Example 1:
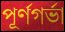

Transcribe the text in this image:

পূর্ণগর্ভা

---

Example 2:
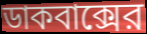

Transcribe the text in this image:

ডাকবাক্সের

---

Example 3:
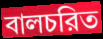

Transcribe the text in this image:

বালচরিত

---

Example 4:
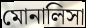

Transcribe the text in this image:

মোনালিসা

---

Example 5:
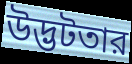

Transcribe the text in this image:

উদ্ভটতার